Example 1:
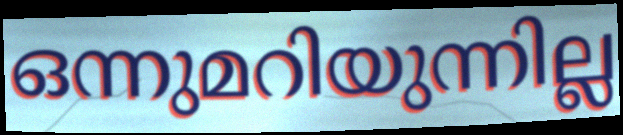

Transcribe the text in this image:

ഒന്നുമറിയുന്നില്ല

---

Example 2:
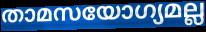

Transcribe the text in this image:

താമസയോഗ്യമല്ല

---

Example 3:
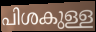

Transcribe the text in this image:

പിശകുള്ള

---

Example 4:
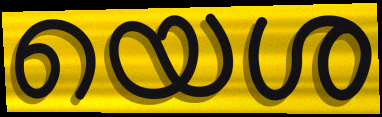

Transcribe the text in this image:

യെശ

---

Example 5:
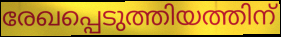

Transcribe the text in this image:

രേഖപ്പെടുത്തിയത്തിന്